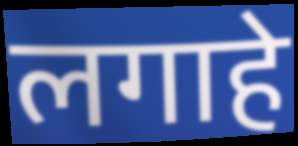
लगाहे